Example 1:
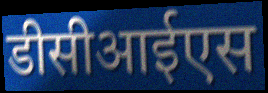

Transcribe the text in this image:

डीसीआईएस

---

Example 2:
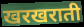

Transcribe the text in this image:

खरखराती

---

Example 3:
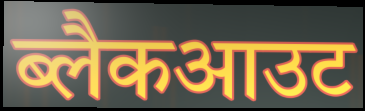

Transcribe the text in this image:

ब्लैकआउट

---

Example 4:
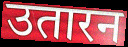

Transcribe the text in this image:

उतारन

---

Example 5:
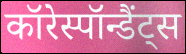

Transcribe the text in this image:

कॉरेस्पॉन्डैंट्स